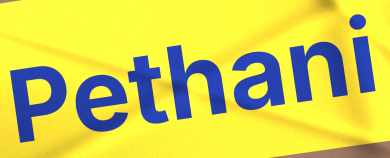
Pethani